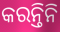
କରନ୍ତିନି